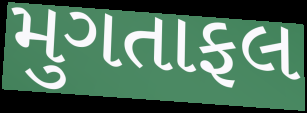
મુગતાફલ